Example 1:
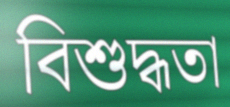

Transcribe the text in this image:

বিশুদ্ধতা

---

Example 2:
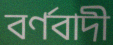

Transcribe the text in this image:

বৰ্ণবাদী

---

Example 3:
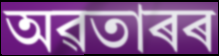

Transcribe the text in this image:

অৱতাৰৰ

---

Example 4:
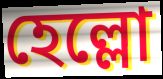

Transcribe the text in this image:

হেল্লো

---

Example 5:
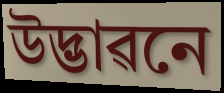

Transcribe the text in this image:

উদ্ভাৱনে